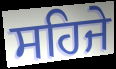
ਸਹਿਜੇ